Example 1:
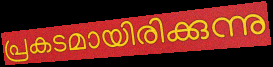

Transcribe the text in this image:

പ്രകടമായിരിക്കുന്നു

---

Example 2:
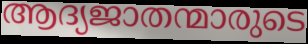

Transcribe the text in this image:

ആദ്യജാതന്മാരുടെ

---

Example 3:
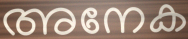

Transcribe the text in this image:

അനേക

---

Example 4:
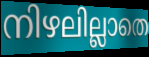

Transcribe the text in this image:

നിഴലില്ലാതെ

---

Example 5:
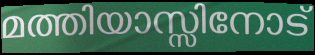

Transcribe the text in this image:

മത്തിയാസ്സിനോട്